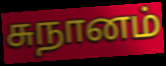
சுநானம்